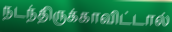
நடந்திருக்காவிட்டால்